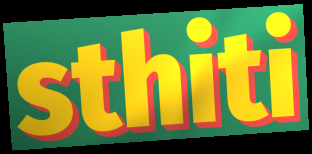
sthiti